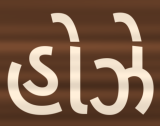
હોઝે